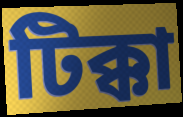
টিক্কা